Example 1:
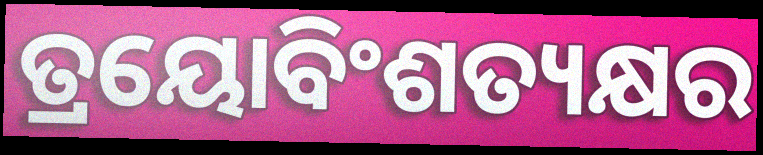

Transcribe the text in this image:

ତ୍ରୟୋବିଂଶତ୍ୟକ୍ଷର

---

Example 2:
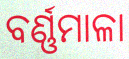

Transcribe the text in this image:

ବର୍ଣ୍ଣମାଳା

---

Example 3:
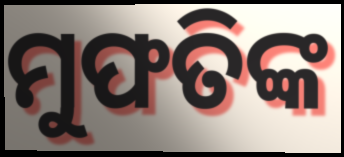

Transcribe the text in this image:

ମୁଫତିଙ୍କ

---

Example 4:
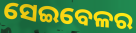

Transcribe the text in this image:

ସେଇବେଳର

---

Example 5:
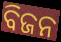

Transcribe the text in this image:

ବିଜନ